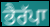
ਭੈਰੱਪਾ